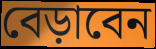
বেড়াবেন